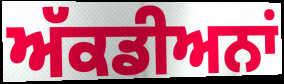
ਅੱਕਡੀਅਨਾਂ